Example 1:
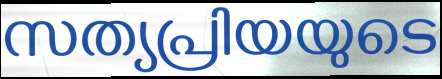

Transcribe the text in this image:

സത്യപ്രിയയുടെ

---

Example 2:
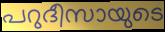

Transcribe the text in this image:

പറുദീസായുടെ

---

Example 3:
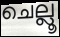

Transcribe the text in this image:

ചെല്ലൂ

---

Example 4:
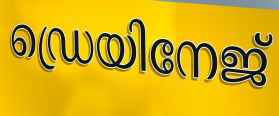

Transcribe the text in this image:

ഡ്രെയിനേജ്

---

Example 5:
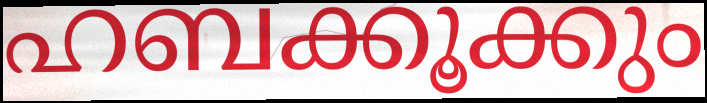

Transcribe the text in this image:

ഹബക്കൂക്കും